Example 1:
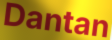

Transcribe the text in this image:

Dantan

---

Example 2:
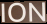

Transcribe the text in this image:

ION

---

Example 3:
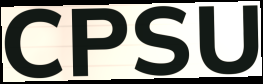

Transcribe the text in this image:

CPSU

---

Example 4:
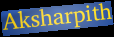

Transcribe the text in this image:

Aksharpith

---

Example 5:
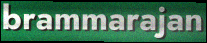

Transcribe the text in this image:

brammarajan